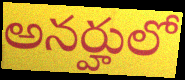
అనర్హులో